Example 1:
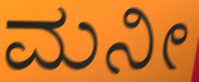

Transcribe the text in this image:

ಮನೀ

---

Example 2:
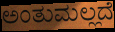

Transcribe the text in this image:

ಅಂತುಮಲ್ಲದೆ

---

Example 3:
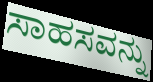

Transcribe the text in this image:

ಸಾಹಸವನ್ನು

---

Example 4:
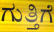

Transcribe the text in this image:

ಗುತ್ತಿಗೆ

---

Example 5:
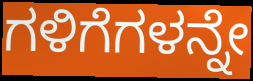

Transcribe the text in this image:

ಗಳಿಗೆಗಳನ್ನೇ